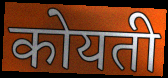
कोयती